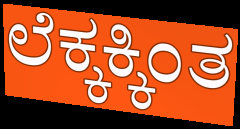
ಲೆಕ್ಕಕ್ಕಿಂತ